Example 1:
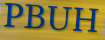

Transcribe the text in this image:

PBUH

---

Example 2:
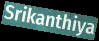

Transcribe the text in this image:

Srikanthiya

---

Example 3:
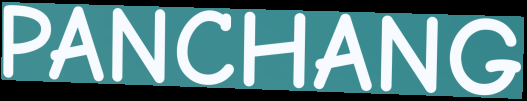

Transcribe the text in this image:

PANCHANG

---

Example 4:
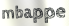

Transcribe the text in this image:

mbappe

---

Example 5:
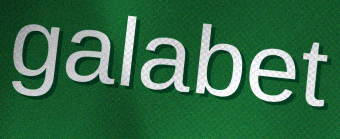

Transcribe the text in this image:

galabet